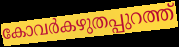
കോവർകഴുതപ്പുറത്ത്